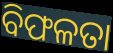
ବିଫଳତା